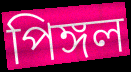
পিঙ্গল